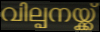
വില്പനയ്ക്ക്